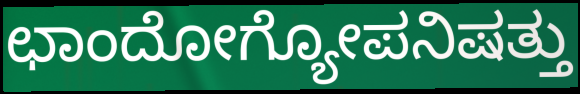
ಛಾಂದೋಗ್ಯೋಪನಿಷತ್ತು